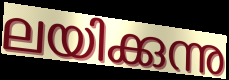
ലയിക്കുന്നു